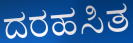
ದರಹಸಿತ